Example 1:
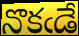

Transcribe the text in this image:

నొకఁడే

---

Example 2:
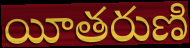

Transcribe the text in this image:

యీతరుణి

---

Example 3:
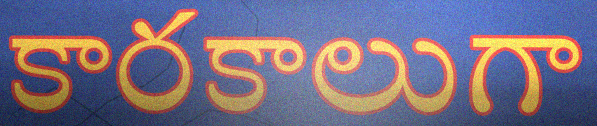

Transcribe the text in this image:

కారకాలుగా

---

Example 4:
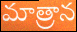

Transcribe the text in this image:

మాత్రాన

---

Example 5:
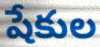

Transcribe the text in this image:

షేకుల